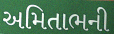
અમિતાભની